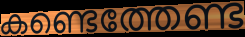
കണ്ടെത്തേണ്ട